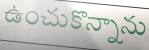
ఉంచుకొన్నాను